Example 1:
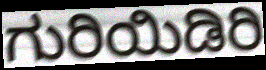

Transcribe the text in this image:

ಗುರಿಯಿಡಿರಿ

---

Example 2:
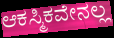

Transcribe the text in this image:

ಆಕಸ್ಮಿಕವೇನಲ್ಲ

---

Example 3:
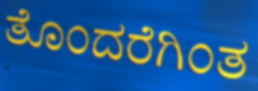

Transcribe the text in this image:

ತೊಂದರೆಗಿಂತ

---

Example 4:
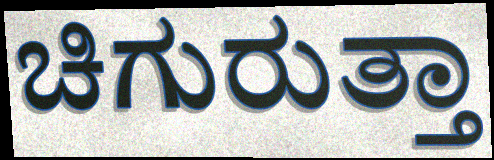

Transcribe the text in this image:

ಚಿಗುರುತ್ತಾ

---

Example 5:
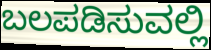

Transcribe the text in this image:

ಬಲಪಡಿಸುವಲ್ಲಿ